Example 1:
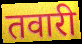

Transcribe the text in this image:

तवारी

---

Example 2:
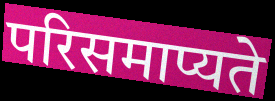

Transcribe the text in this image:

परिसमाप्यते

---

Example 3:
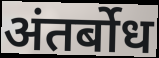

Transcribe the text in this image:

अंतर्बोध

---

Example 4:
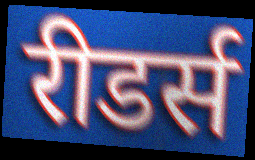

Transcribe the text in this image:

रीडर्स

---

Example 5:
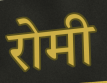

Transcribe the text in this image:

रोमी